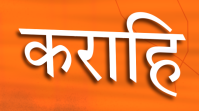
कराहि